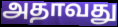
அதாவது